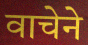
वाचेने